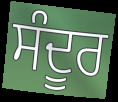
ਸੰਦੂਰ